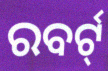
ରବର୍ଟ୍